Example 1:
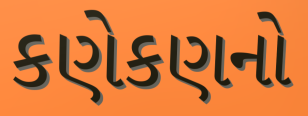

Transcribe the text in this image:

કણેકણનો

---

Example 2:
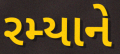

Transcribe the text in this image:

રમ્યાને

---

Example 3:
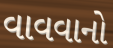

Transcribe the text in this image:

વાવવાનો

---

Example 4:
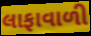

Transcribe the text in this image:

લાફાવાળી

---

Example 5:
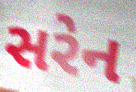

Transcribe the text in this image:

સરેન